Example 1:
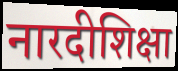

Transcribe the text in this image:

नारदीशिक्षा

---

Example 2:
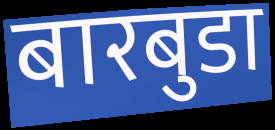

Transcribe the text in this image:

बारबुडा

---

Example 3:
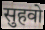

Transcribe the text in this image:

सुहवो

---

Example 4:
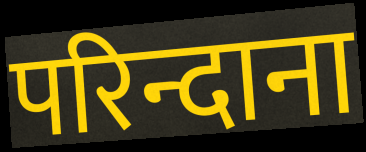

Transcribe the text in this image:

परिन्दाना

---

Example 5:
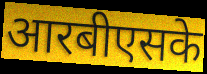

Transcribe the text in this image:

आरबीएसके